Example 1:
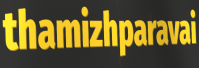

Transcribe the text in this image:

thamizhparavai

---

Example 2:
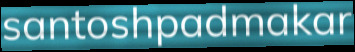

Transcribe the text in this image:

santoshpadmakar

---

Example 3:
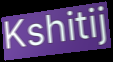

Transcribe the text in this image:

Kshitij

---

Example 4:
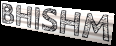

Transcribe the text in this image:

BHISHM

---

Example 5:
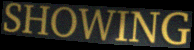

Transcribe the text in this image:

SHOWING